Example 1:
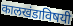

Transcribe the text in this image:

कालखंडाविषयी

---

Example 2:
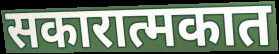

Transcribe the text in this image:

सकारात्मकात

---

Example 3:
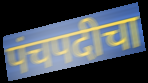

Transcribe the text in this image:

पंचपदीचा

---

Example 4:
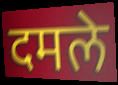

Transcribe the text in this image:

दमले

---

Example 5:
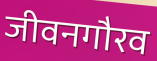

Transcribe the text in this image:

जीवनगौरव